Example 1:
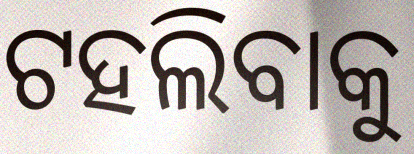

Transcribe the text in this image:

ଟହଲିବାକୁ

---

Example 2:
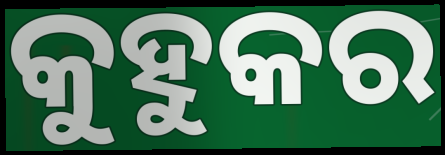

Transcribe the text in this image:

କୁହୁକର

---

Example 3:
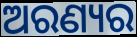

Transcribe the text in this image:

ଅରଣ୍ୟର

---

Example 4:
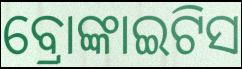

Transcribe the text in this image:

ବ୍ରୋଙ୍କାଇଟିସ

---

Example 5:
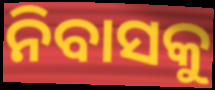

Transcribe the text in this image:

ନିବାସକୁ